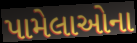
પામેલાઓના